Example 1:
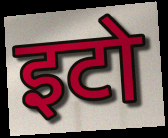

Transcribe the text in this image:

इटो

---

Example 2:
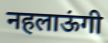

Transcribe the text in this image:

नहलाऊंगी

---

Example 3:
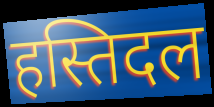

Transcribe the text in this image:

हस्तिदल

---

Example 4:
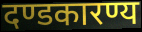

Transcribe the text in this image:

दण्डकारण्य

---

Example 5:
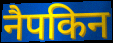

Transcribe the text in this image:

नैपकिन